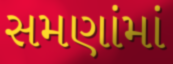
સમણાંમાં